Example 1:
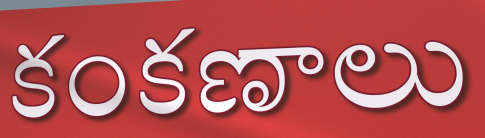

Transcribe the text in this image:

కంకణాలు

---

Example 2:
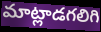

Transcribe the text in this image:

మాట్లాడగలిగి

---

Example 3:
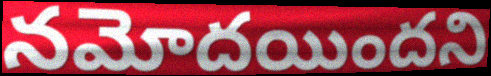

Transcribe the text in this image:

నమోదయిందని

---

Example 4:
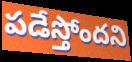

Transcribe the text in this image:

పడేస్తోందని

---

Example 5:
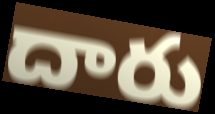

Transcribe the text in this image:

దారు